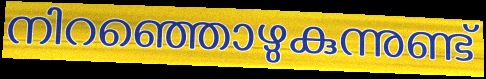
നിറഞ്ഞൊഴുകുന്നുണ്ട്